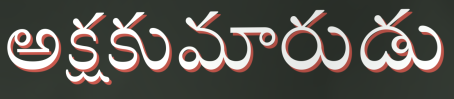
అక్షకుమారుడు